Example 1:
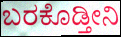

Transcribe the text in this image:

ಬರಕೊಡ್ತೀನಿ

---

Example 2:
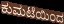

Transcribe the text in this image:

ಕುಮಟೆಯಿಂದ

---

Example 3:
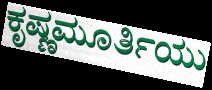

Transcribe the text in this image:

ಕೃಷ್ಣಮೂರ್ತಿಯು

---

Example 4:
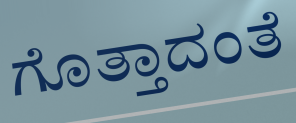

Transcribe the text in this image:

ಗೊತ್ತಾದಂತೆ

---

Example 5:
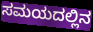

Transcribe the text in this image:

ಸಮಯದಲ್ಲಿನ